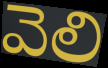
వెలి